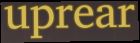
uprear